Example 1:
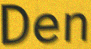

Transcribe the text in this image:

Den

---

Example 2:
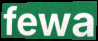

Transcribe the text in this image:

fewa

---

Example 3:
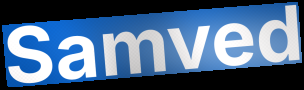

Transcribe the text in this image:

Samved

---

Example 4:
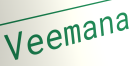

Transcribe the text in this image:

Veemana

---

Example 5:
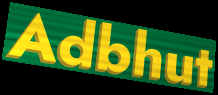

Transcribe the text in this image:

Adbhut